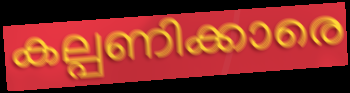
കല്പണിക്കാരെ